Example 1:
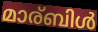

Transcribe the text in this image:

മാര്ബിൾ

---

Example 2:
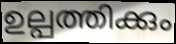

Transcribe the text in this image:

ഉല്പത്തിക്കും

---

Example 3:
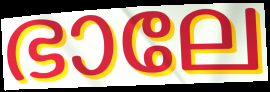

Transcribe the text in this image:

ഭാലേ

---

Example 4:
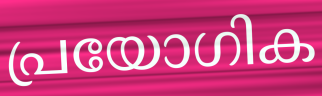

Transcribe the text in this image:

പ്രയോഗിക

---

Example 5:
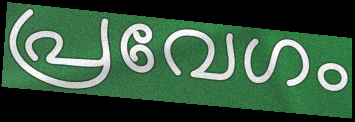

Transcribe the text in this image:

പ്രവേഗം